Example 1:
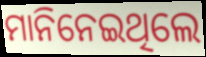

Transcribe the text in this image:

ମାନିନେଇଥିଲେ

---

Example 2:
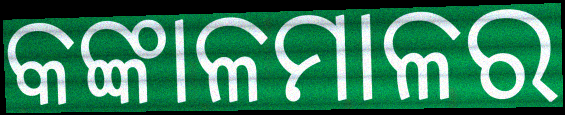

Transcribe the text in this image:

କଙ୍କାଳମାଳର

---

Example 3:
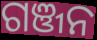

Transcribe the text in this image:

ଗଞ୍ଜନ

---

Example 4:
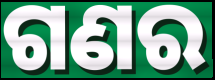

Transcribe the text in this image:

ଗଣର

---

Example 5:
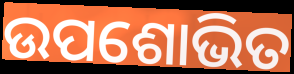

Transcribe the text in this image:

ଉପଶୋଭିତ